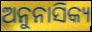
ଅନୁନାସିକ୍ୟ